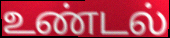
உண்டல்